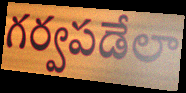
గర్వపడేలా